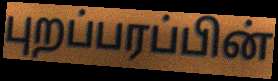
புறப்பரப்பின்